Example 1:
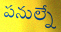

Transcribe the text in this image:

పనుల్నే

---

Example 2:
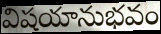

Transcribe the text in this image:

విషయానుభవం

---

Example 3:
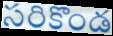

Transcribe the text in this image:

సరికొండ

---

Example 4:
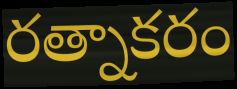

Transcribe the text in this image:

రత్నాకరం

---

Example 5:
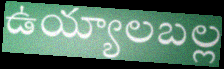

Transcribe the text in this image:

ఉయ్యాలబల్ల